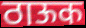
ठाऊक